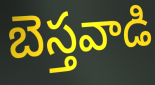
బెస్తవాడి